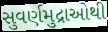
સુવર્ણમુદ્રાઓથી